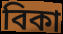
বিকা